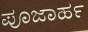
ಪೂಜಾರ್ಹ